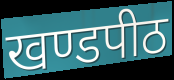
खण्डपीठ